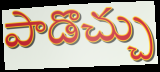
పాడొచ్చు